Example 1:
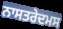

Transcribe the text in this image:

ਨਾਸਤਰੇਦਮਸ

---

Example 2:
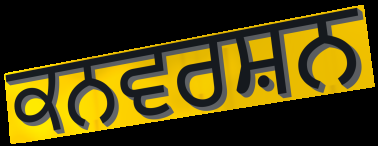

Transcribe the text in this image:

ਕਨਵਰਸ਼ਨ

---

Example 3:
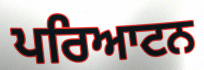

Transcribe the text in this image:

ਪਰਿਆਟਨ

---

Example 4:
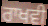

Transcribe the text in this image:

ਰਾਖਵੀ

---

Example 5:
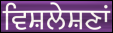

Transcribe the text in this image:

ਵਿਸ਼ਲੇਸ਼ਣਾਂ